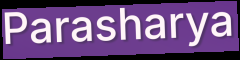
Parasharya